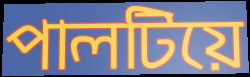
পালটিয়ে